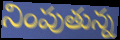
నింపుతున్న